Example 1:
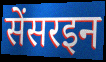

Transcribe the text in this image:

सेंसरइन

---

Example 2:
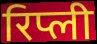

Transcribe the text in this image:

रिप्ली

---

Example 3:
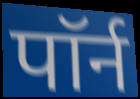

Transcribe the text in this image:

पॉर्न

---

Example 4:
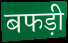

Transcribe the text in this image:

बफड़ी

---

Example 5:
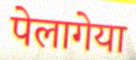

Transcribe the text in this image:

पेलागेया